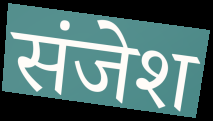
संजेश